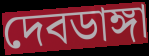
দেবডাঙ্গা